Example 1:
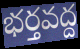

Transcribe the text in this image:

భర్తవద్ద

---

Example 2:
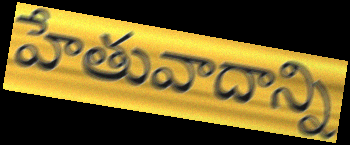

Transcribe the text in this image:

హేతువాదాన్ని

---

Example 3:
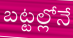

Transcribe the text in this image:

బట్టల్లోనే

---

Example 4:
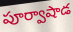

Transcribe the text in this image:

పూర్వాషాడ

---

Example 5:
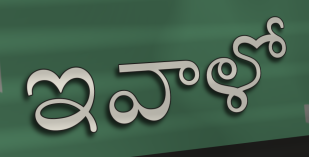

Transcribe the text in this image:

ఇవాళో